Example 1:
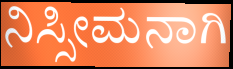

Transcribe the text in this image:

ನಿಸ್ಸೀಮನಾಗಿ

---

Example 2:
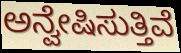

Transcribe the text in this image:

ಅನ್ವೇಷಿಸುತ್ತಿವೆ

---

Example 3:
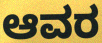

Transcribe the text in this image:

ಆವರ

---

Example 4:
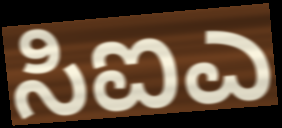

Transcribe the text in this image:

ಸಿಐಎ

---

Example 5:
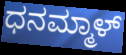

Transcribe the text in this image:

ಧನಮ್ಮಾಳ್